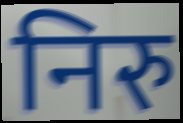
निरु